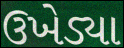
ઉખેડ્યા